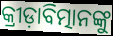
କ୍ରୀଡ଼ାବିତ୍ମାନଙ୍କୁ